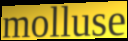
molluse